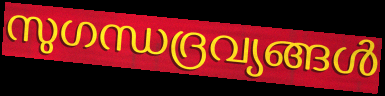
സുഗന്ധദ്രവ്യങ്ങൾ